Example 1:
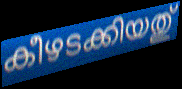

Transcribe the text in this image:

കീഴടക്കിയതു്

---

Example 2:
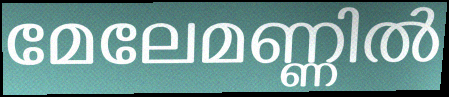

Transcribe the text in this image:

മേലേമണ്ണിൽ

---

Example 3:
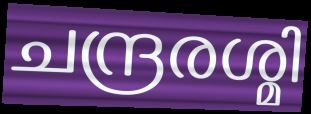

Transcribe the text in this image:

ചന്ദ്രരശ്മി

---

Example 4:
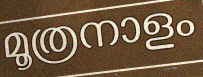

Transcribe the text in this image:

മൂത്രനാളം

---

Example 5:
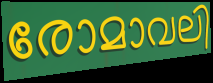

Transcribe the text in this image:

രോമാവലി